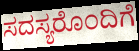
ಸದಸ್ಯರೊಂದಿಗೆ